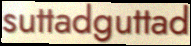
suttadguttad